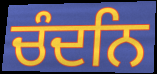
ਚੰਦਨਿ